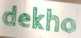
dekho